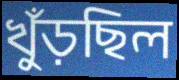
খুঁড়ছিল